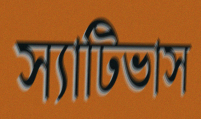
স্যাটিভাস